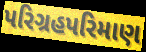
પરિગ્રહપરિમાણ